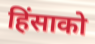
हिंसाको